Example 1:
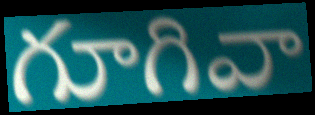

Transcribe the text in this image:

గూగివా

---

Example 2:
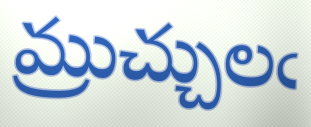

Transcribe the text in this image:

మ్రుచ్చులఁ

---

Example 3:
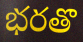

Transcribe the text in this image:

భరతొ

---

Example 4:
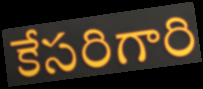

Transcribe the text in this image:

కేసరిగారి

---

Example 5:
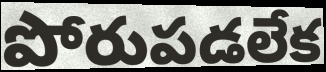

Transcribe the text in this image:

పోరుపడలేక